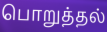
பொறுத்தல்